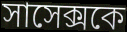
সাসেক্সকে